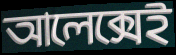
আলেক্সেই